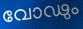
വോഢും